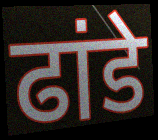
ढांडे